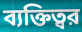
ব্যক্তিত্বর